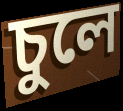
চুলে